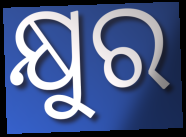
କ୍ଷୁର